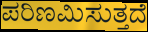
ಪರಿಣಮಿಸುತ್ತದೆ